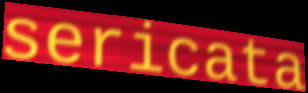
sericata